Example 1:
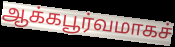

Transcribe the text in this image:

ஆக்கபூர்வமாகச்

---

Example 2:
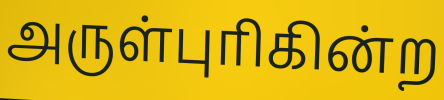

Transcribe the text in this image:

அருள்புரிகின்ற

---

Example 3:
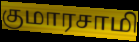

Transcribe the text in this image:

குமாரசாமி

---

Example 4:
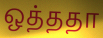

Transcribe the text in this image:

ஒத்ததா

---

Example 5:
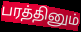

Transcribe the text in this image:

பரத்தினும்